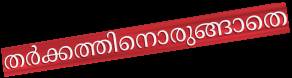
തർക്കത്തിനൊരുങ്ങാതെ